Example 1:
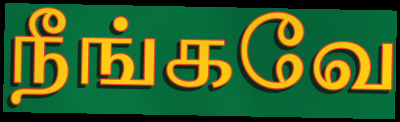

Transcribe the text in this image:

நீங்கவே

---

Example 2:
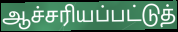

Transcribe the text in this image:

ஆச்சரியப்பட்டுத்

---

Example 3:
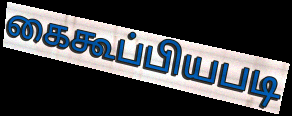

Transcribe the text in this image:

கைகூப்பியபடி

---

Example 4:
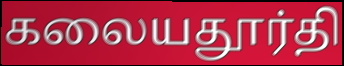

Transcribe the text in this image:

கலையதூர்தி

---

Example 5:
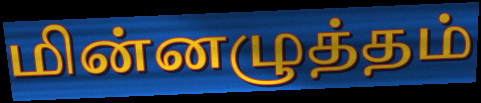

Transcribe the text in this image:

மின்னழுத்தம்